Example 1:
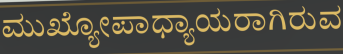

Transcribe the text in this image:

ಮುಖ್ಯೋಪಾಧ್ಯಾಯರಾಗಿರುವ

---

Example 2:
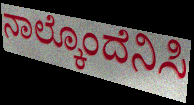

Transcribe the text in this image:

ನಾಲ್ಕೊಂದೆನಿಸಿ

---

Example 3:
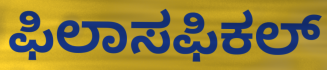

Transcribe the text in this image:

ಫಿಲಾಸಫಿಕಲ್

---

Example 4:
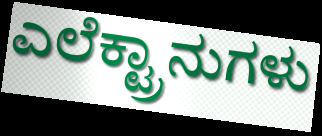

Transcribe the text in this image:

ಎಲೆಕ್ಟ್ರಾನುಗಳು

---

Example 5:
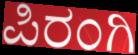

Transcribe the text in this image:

ಪಿರಂಗಿ